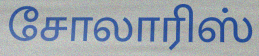
சோலாரிஸ்